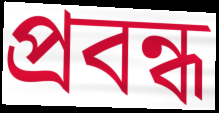
প্ৰবন্ধ